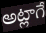
అట్లాగే